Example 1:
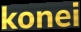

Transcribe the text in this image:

konei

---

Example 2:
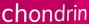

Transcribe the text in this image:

chondrin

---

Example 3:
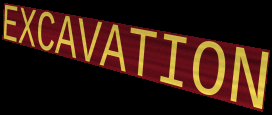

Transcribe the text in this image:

EXCAVATION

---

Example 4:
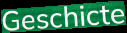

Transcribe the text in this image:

Geschicte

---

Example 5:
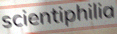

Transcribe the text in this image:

scientiphilia